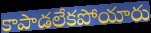
కాపాడలేకపోయారు